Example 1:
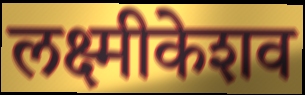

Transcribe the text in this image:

लक्ष्मीकेशव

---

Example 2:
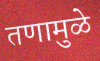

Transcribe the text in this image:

तणामुळे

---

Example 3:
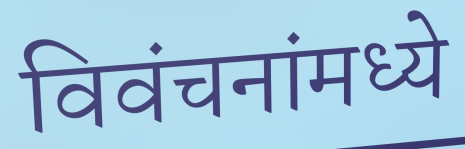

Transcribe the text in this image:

विवंचनांमध्ये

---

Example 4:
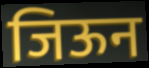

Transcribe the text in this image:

जिऊन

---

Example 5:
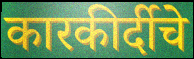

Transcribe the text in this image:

कारकीर्दीचे